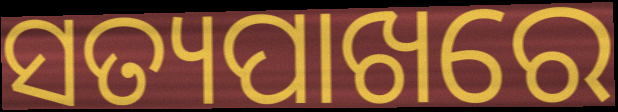
ସତ୍ୟପାଖରେ